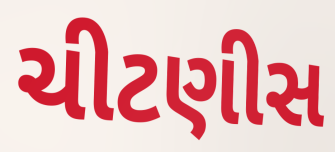
ચીટણીસ